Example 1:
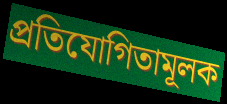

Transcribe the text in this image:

প্ৰতিযোগিতামূলক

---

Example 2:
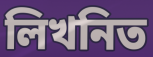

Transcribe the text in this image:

লিখনিত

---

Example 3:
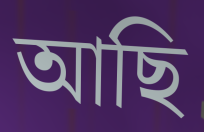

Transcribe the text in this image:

আছি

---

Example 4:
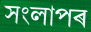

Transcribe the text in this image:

সংলাপৰ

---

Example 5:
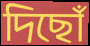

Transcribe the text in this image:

দিছোঁ